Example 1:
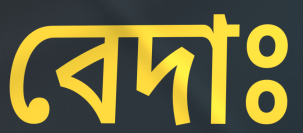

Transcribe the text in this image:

বেদাঃ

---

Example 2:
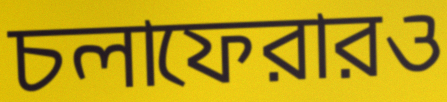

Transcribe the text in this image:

চলাফেরারও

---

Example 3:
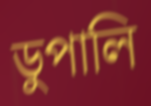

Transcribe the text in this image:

ডুপালি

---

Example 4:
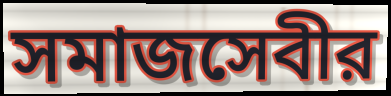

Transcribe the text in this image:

সমাজসেবীর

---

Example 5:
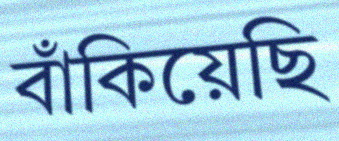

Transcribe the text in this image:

বাঁকিয়েছি